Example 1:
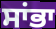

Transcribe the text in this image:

ਸਾਂਭਾ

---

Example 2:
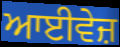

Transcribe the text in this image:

ਆਈਵੇਜ਼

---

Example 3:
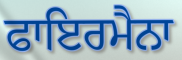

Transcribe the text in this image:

ਫਾਇਰਮੈਨਾ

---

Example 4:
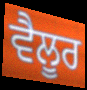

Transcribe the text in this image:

ਵੈਲੂਰ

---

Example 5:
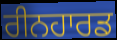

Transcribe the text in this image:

ਰੀਨਹਾਰਡ